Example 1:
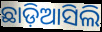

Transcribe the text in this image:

ଛାଡ଼ିଆସିଲି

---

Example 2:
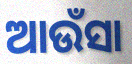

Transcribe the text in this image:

ଆଉଁସା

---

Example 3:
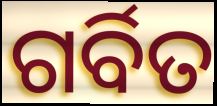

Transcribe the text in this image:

ଗର୍ବିତ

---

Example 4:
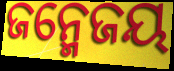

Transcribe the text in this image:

ଜନ୍ମେଜୟ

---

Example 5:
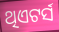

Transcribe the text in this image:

ଥିଏଟର୍ସ